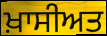
ਖ਼ਾਸੀਅਤ